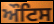
ਔਟਿਸ